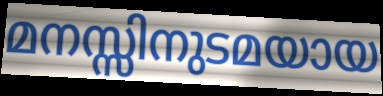
മനസ്സിനുടമയായ